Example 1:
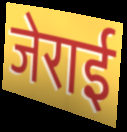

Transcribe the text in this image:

जेराई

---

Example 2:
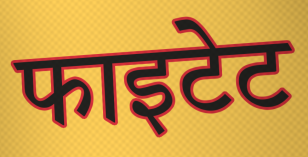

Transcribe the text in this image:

फाइटेट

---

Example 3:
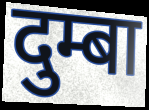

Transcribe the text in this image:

दुम्बा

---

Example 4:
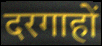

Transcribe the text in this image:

दरगाहों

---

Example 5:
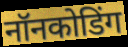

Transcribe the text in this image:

नॉनकोडिंग